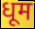
धूम